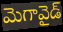
మెగావైడ్